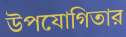
উপযোগিতার